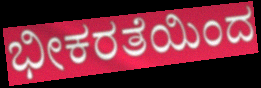
ಭೀಕರತೆಯಿಂದ